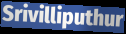
Srivilliputhur